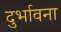
दुर्भावना